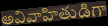
అవివాహితుడిగా